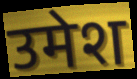
उमेश